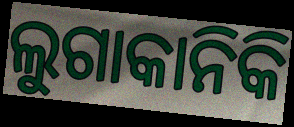
ଲୁଗାକାନିକି